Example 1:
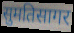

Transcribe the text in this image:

सुमतिसागर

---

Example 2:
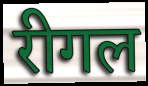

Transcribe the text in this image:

रीगल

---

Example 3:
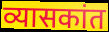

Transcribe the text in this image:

व्यासकांत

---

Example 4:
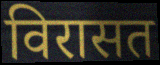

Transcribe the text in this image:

विरासत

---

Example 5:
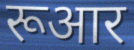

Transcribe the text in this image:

रूआर